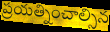
ప్రయత్నించాల్సిన